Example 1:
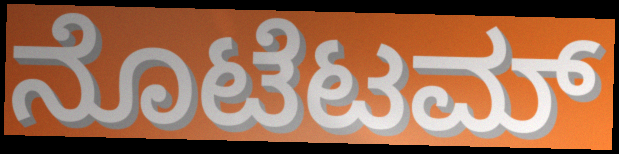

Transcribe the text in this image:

ನೊಟೆಟಮ್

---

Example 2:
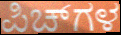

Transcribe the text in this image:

ಪಿಚ್‌ಗಳ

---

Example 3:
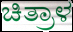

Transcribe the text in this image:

ಚಿತ್ರಾಳ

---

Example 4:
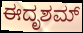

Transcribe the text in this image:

ಈದೃಶಮ್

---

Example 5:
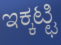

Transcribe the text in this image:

ಇಕ್ಕಟ್ಟಿ